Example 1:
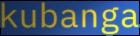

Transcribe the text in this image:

kubanga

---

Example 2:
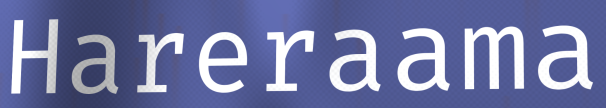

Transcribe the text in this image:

Hareraama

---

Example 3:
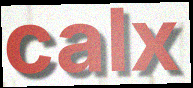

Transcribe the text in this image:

calx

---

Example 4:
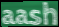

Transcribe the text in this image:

aash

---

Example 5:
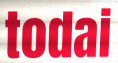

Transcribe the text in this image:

todai